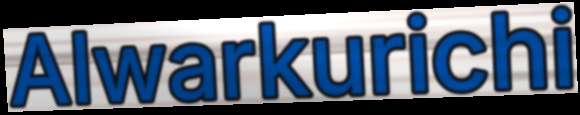
Alwarkurichi